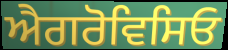
ਐਗਰੋਵਿਸਿਓ